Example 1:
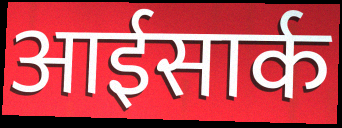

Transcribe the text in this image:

आईसार्क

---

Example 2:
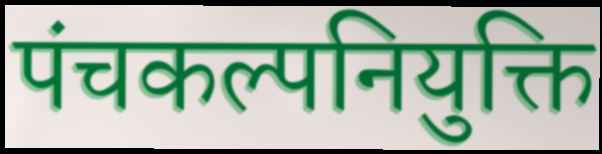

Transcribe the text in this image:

पंचकल्पनियुक्ति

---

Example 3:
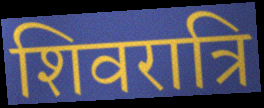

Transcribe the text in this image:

शिवरात्रि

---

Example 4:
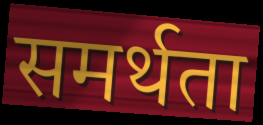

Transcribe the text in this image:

समर्थता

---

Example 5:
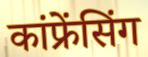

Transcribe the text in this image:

कांफ्रेंसिंग